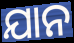
ଯାନ